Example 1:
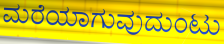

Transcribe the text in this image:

ಮರೆಯಾಗುವುದುಂಟು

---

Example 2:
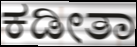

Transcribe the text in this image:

ಕಡೀತಾ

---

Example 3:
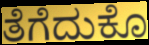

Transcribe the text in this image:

ತೆಗೆದುಕೊ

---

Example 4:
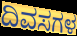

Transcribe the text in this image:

ದಿವಸಗಳ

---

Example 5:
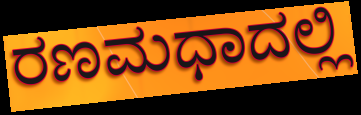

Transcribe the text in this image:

ರಣಮಧಾದಲ್ಲಿ